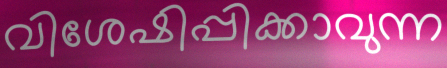
വിശേഷിപ്പിക്കാവുന്ന